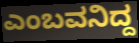
ಎಂಬವನಿದ್ದ